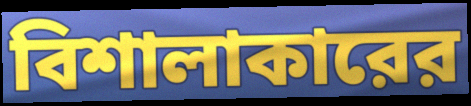
বিশালাকারের